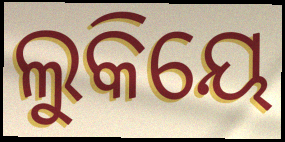
ଲୁକିୟେ